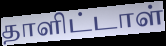
தாளிட்டாள்